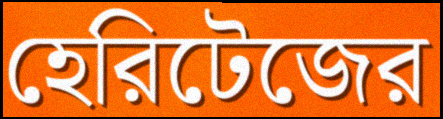
হেরিটেজের